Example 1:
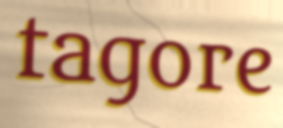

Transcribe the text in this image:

tagore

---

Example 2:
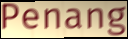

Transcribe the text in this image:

Penang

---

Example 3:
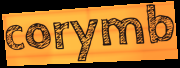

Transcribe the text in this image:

corymb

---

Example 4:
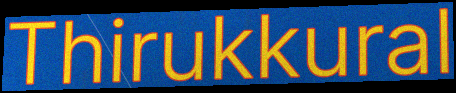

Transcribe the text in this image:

Thirukkural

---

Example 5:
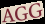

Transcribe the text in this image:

AGG